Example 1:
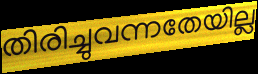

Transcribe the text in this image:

തിരിച്ചുവന്നതേയില്ല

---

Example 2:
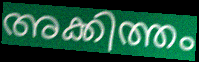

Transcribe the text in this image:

അക്കിത്തം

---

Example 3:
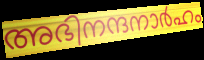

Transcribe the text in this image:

അഭിനന്ദനാർഹം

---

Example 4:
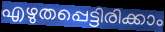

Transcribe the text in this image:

എഴുതപ്പെട്ടിരിക്കാം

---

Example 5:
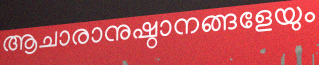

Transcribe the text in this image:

ആചാരാനുഷ്ഠാനങ്ങളേയും